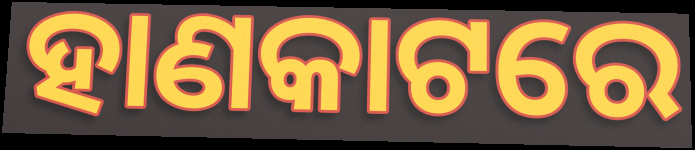
ହାଣକାଟରେ